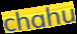
chahu